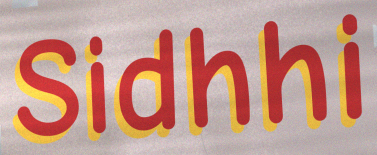
Sidhhi